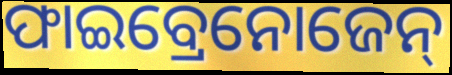
ଫାଇବ୍ରେନୋଜେନ୍